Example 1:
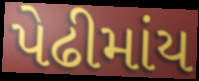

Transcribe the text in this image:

પેઢીમાંય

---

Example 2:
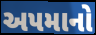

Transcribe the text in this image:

અપમાનો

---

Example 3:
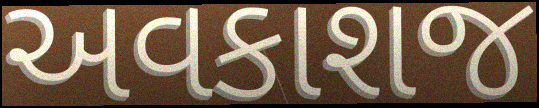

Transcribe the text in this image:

અવકાશજ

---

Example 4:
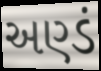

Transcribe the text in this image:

અણ્ડં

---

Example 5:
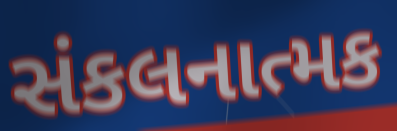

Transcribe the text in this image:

સંકલનાત્મક